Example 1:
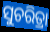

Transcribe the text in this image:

ସୁଚରିତ୍ରା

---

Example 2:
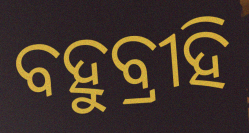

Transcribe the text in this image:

ବହୁବ୍ରୀହି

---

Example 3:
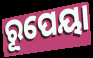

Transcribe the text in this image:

ରୂପେୟା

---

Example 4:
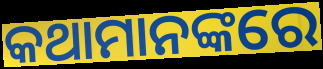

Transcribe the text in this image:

କଥାମାନଙ୍କରେ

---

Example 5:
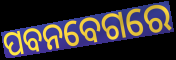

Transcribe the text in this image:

ପବନବେଗରେ